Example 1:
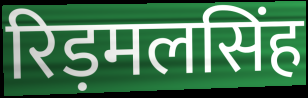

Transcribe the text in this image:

रिड़मलसिंह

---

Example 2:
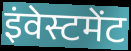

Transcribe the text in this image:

इंवेस्टमेंट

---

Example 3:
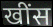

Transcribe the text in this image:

खींस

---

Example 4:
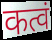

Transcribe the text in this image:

कत्वं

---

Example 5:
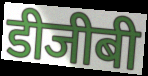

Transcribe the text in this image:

डीजीबी